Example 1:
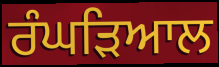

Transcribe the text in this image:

ਰੰਘੜਿਆਲ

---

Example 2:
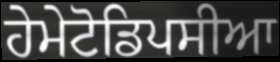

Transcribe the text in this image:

ਹੇਮੇਟੋਡਿਪਸੀਆ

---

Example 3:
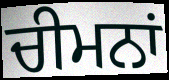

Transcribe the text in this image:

ਚੀਮਨਾਂ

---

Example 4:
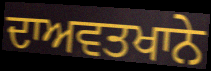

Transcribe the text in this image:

ਦਾਅਵਤਖਾਨੇ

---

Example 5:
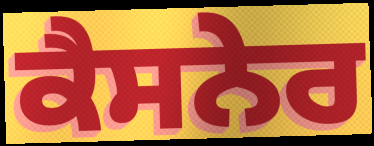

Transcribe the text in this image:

ਕੈਸਨੇਰ